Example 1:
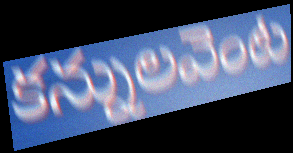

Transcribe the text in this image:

కన్నులవెంట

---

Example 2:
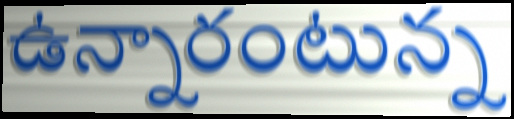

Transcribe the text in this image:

ఉన్నారంటున్న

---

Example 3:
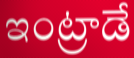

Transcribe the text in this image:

ఇంట్రాడే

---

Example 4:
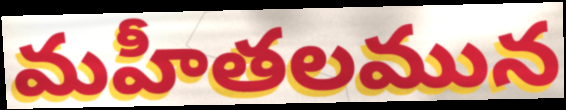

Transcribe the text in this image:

మహీతలమున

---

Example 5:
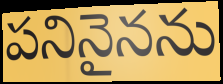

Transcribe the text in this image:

పనినైనను